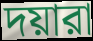
দয়ারা